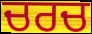
ਚਰਚ